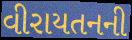
વીરાયતનની